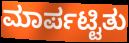
ಮಾರ್ಪಟ್ಟಿತು